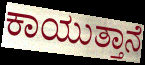
ಕಾಯುತ್ತಾನೆ